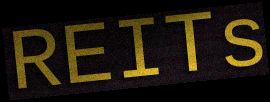
REITs